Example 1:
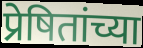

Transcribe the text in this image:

प्रेषितांच्या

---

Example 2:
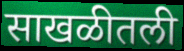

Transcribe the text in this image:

साखळीतली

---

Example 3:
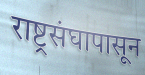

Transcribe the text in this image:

राष्ट्रसंघापासून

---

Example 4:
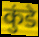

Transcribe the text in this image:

कुंडे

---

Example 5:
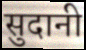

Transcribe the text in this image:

सुदानी